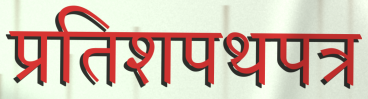
प्रतिशपथपत्र